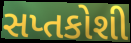
સપ્તકોશી